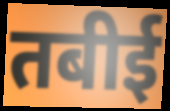
तबीई